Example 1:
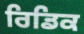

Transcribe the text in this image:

ਰਿਡਿਕ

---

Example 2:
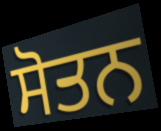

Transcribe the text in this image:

ਸੋਤਨ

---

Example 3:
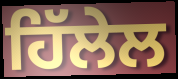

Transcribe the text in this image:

ਹਿੱਲੇਲ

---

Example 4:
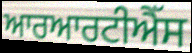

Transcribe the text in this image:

ਆਰਆਰਟੀਐੱਸ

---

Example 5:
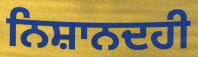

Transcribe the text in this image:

ਨਿਸ਼ਾਨਦਹੀ